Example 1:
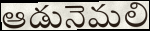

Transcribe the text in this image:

ఆడునెమలి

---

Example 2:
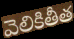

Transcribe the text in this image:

వెలికితీత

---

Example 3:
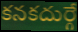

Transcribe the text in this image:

కనకదుర్గే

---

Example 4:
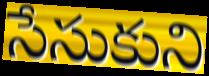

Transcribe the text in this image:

సేసుకుని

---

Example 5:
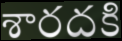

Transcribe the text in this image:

శారదకి